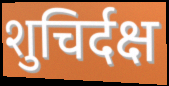
शुचिर्दक्ष